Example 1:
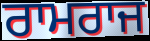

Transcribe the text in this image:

ਰਾਮਰਾਜ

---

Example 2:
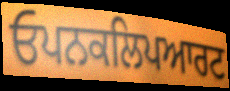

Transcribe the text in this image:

ਓਪਨਕਲਿਪਆਰਟ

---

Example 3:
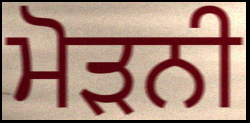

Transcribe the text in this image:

ਮੋੜਨੀ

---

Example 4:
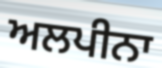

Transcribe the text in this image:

ਅਲਪੀਨਾ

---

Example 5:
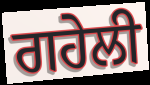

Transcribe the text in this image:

ਗਹੇਲੀ